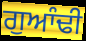
ਗੁਆੰਢੀ